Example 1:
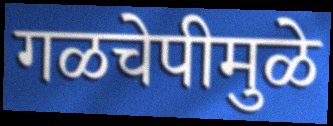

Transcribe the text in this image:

गळचेपीमुळे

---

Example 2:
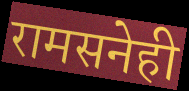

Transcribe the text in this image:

रामसनेही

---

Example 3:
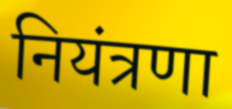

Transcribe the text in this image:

नियंत्रणा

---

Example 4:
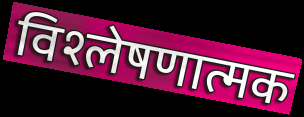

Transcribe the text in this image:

विश्लेषणात्मक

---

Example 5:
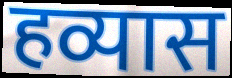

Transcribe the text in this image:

हव्यास